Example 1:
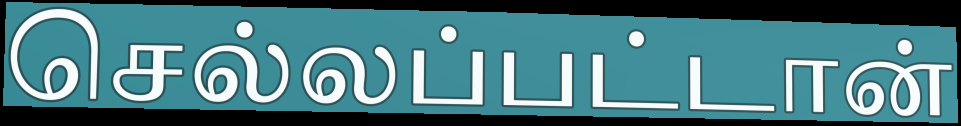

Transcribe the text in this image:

செல்லப்பட்டான்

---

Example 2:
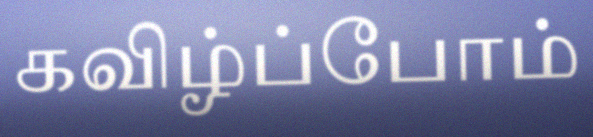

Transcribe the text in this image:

கவிழ்ப்போம்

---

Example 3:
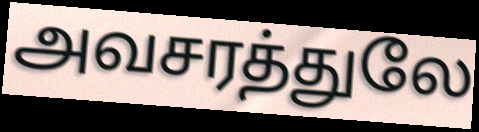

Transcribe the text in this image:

அவசரத்துலே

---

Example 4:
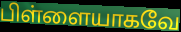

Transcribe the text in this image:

பிள்ளையாகவே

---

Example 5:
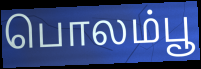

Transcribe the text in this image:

பொலம்பூ